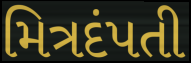
મિત્રદંપતી